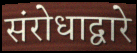
संरोधाद्वारे